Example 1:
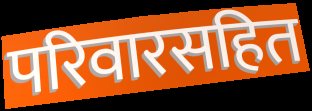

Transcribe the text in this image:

परिवारसहित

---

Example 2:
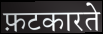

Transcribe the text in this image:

फ़टकारते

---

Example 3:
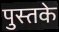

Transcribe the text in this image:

पुस्तके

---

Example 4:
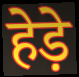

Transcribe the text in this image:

हेड़े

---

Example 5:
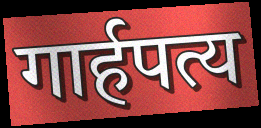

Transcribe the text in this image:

गार्हपत्य